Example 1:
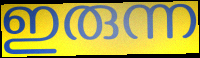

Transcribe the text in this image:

ഇരുന്ന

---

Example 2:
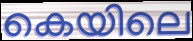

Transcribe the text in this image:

കെയിലെ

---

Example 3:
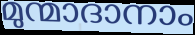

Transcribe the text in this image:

മുന്മാദാനാം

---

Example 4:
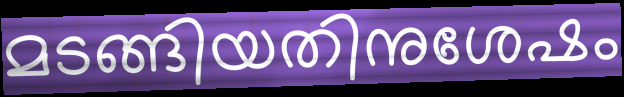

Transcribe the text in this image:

മടങ്ങിയതിനുശേഷം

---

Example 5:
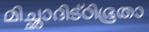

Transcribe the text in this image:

മിച്ഛാദിട്ഠിഭൂതാ